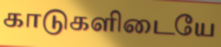
காடுகளிடையே